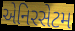
એનિરસેટમ